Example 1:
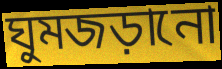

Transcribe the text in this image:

ঘুমজড়ানো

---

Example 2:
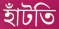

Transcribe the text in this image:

হাঁটতি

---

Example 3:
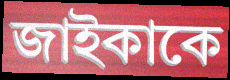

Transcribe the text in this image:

জাইকাকে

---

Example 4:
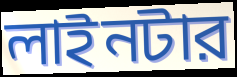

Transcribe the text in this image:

লাইনটার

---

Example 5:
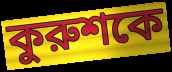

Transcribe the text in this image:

কুরুশকে